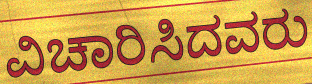
ವಿಚಾರಿಸಿದವರು